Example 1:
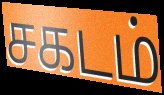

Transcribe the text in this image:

சகடம்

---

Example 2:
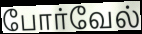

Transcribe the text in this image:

போர்வேல்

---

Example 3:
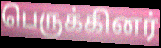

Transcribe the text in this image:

பெருக்கினர்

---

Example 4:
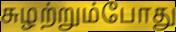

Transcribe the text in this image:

சுழற்றும்போது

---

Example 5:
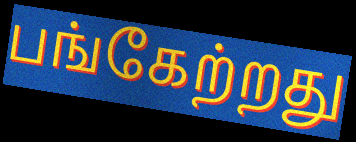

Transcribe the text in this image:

பங்கேற்றது